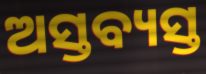
ଅସ୍ତବ୍ୟସ୍ତ